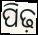
ପିଢ଼